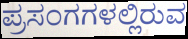
ಪ್ರಸಂಗಗಳಲ್ಲಿರುವ